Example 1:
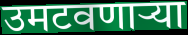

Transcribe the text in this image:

उमटवणार्‍या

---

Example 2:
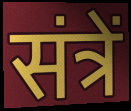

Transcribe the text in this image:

संत्रें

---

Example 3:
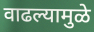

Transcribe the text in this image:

वाढल्यामुळे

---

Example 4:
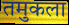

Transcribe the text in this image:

तमुकला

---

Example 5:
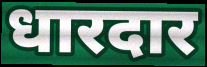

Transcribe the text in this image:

धारदार